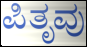
ಪಿತೃವು